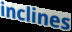
inclines